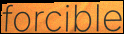
forcible